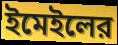
ইমেইলের